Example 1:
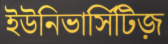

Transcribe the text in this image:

ইউনিভার্সিটিজ়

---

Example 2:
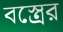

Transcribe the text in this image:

বস্ত্রের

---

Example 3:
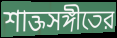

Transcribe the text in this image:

শাক্তসঙ্গীতের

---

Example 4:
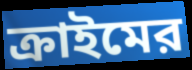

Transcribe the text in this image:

ক্রাইমের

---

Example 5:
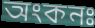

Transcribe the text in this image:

অংকনঃ